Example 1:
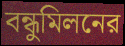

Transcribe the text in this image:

বন্ধুমিলনের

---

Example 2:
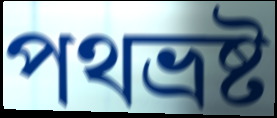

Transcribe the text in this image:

পথভ্রষ্ট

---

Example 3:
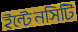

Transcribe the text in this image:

ইন্টেনসিটি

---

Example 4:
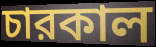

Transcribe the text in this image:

চারকাল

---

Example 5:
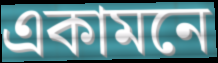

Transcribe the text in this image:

একামনে